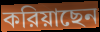
করিয়াছেন